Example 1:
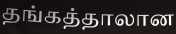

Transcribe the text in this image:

தங்கத்தாலான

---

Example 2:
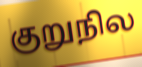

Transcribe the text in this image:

குறுநில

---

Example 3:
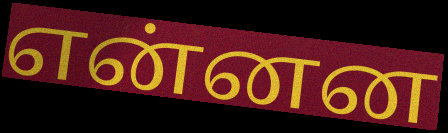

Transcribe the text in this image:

என்னன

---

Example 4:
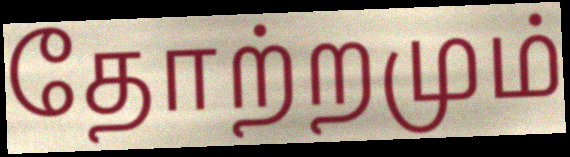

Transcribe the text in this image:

தோற்றமும்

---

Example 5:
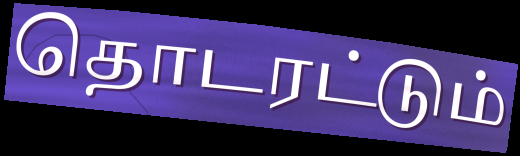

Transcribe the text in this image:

தொடரட்டும்